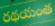
రథయంత